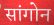
सांगोन